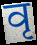
वृ